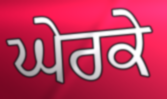
ਘੇਰਕੇ